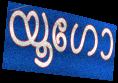
യൂഗോ